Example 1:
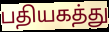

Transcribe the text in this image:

பதியகத்து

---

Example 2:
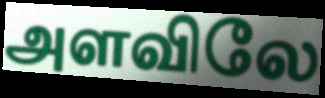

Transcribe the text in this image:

அளவிலே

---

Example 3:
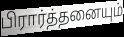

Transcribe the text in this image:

பிரார்த்தனையும்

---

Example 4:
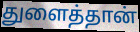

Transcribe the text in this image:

துளைத்தான்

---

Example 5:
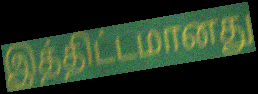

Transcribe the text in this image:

இத்திட்டமானது